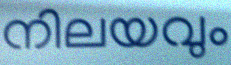
നിലയവും